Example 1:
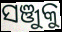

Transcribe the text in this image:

ସଞ୍ଜୁକୁ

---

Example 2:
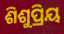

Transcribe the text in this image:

ଶିଶୁପ୍ରିୟ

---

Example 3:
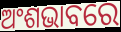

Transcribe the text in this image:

ଅଂଶଭାବରେ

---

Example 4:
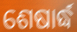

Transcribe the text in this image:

ଶେଷାର୍ଦ୍ଧ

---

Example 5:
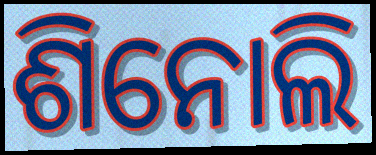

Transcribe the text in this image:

ଶିନୋଲି